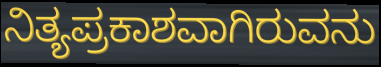
ನಿತ್ಯಪ್ರಕಾಶವಾಗಿರುವನು